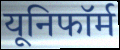
यूनिफॉर्म